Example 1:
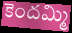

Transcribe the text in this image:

కెందమ్మి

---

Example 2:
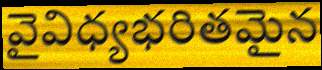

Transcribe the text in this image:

వైవిధ్యభరితమైన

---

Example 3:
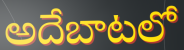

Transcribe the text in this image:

అదేబాటలో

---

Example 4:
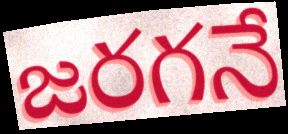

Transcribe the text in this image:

జరగనే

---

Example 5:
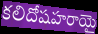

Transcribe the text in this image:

కలిదోషహరాయై